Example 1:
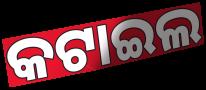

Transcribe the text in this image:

କଟାଇଲ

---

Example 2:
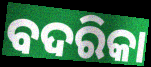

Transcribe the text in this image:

ବଦରିକା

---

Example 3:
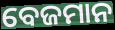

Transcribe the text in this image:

ବେଜମାନ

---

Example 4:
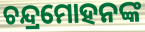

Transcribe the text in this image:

ଚନ୍ଦ୍ରମୋହନଙ୍କ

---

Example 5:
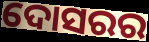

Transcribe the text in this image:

ଦୋସରର